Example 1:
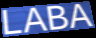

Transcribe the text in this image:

LABA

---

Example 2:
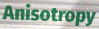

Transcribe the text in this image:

Anisotropy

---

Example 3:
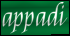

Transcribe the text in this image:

appadi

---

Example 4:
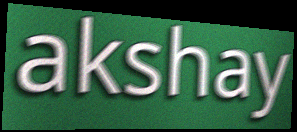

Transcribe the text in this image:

akshay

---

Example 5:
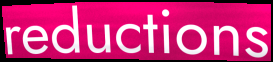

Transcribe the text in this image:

reductions